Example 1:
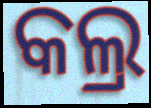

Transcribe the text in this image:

କଲ୍ର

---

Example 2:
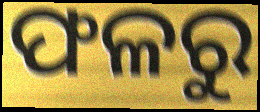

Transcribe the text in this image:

ଫଳରୁ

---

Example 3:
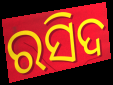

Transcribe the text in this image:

ରସିଦ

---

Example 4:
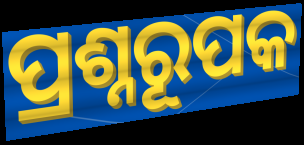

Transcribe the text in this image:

ପ୍ରଶ୍ନରୂପକ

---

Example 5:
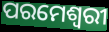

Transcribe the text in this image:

ପରମେଶ୍ୱରୀ